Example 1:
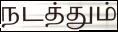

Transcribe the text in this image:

நடத்தும்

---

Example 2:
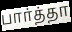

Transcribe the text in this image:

பார்த்தா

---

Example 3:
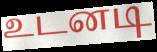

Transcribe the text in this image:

உடனடி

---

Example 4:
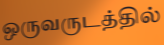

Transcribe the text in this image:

ஒருவருடத்தில்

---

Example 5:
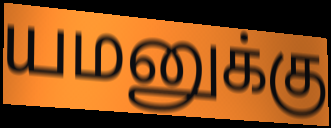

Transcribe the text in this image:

யமனுக்கு